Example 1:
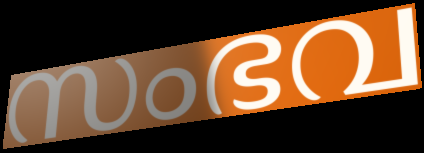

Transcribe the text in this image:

സംഭവ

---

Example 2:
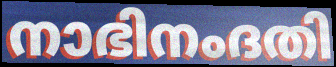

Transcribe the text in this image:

നാഭിനംദതി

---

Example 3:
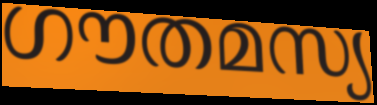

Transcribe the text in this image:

ഗൗതമസ്യ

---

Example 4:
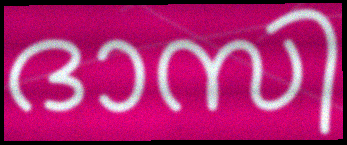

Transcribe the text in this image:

ദാസി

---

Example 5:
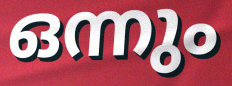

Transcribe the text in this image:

ഒന്നും